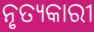
ନୃତ୍ୟକାରୀ